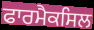
ਫਾਰਮੈਕਸਿਲ